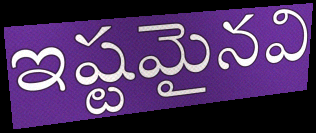
ఇష్టమైనవి